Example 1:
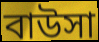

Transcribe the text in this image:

বাউসা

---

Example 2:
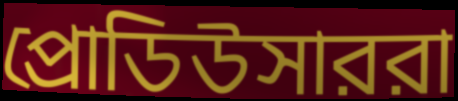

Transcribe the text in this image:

প্রোডিউসাররা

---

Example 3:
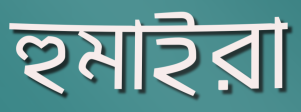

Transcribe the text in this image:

হুমাইরা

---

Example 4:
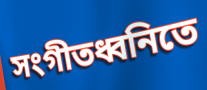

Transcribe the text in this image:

সংগীতধ্বনিতে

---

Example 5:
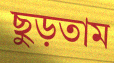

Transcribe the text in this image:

ছুড়তাম